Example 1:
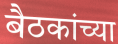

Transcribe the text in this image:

बैठकांच्या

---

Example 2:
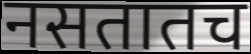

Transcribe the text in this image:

नसतातच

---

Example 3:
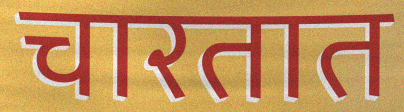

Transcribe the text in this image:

चारतात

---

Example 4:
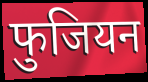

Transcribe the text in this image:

फुजियन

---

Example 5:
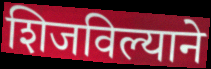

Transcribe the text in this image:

शिजविल्याने